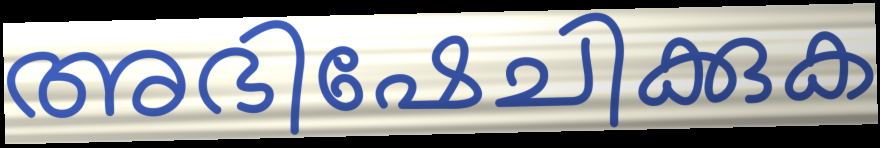
അഭിഷേചിക്കുക